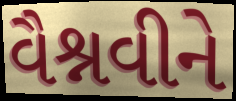
વૈશ્નવીને